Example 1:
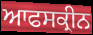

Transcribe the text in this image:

ਆਫਸਕ੍ਰੀਨ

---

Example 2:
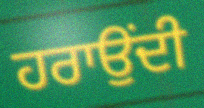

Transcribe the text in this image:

ਹਰਾਉਂਦੀ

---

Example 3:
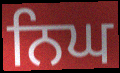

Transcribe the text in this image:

ਨਿਘ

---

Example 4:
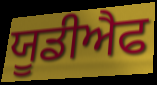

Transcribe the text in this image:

ਯੂਡੀਐਫ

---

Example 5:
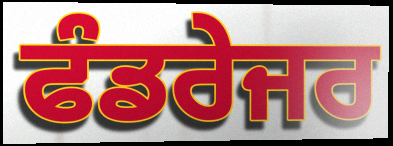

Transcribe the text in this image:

ਫੰਡਰੇਜਰ